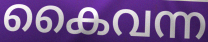
കൈവന്ന